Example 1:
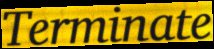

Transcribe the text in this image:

Terminate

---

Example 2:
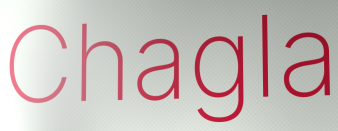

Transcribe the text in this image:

Chagla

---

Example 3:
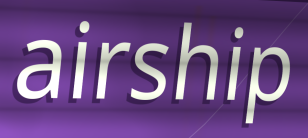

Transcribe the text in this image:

airship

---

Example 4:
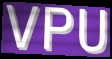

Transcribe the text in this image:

VPU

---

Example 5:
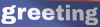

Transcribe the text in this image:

greeting